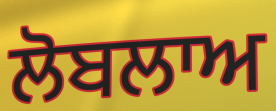
ਲੋਬਲਾਅ